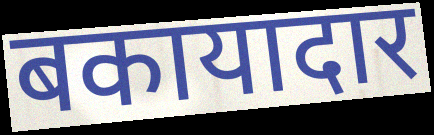
बकायादार